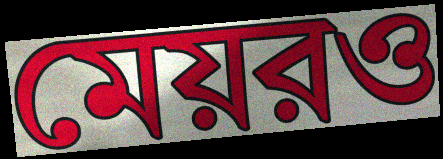
মেয়রও